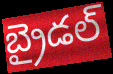
బ్రైడల్